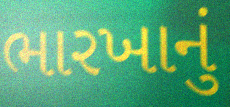
ભારખાનું